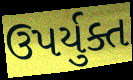
ઉપર્યુક્ત